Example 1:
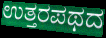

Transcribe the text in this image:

ಉತ್ತರಪಥದ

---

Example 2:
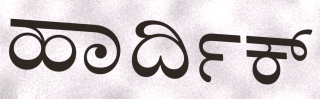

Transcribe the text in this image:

ಹಾರ್ದಿಕ್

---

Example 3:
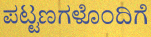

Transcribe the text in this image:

ಪಟ್ಟಣಗಳೊಂದಿಗೆ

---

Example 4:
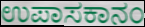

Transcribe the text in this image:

ಉಪಾಸಕಾನಂ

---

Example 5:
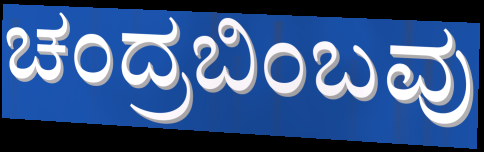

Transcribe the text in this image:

ಚಂದ್ರಬಿಂಬವು